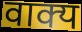
वाक्य